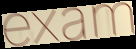
exam